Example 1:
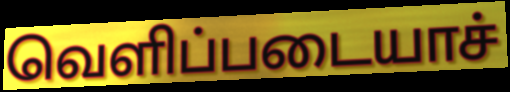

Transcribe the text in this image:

வெளிப்படையாச்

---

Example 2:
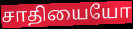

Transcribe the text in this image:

சாதியையோ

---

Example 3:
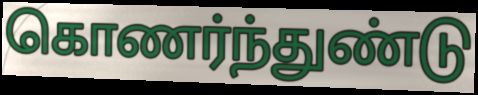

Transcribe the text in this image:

கொணர்ந்துண்டு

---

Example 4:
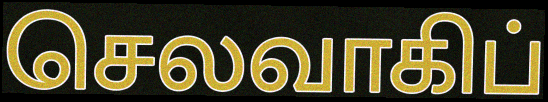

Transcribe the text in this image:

செலவாகிப்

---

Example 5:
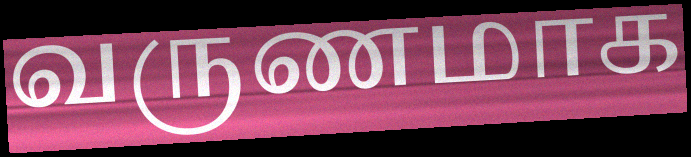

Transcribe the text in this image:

வருணமாக